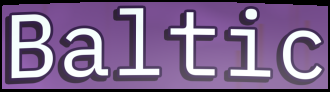
Baltic